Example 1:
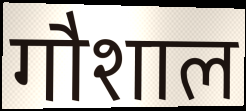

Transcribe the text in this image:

गौशाल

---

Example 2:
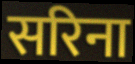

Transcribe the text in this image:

सरिना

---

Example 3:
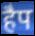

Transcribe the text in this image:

हैप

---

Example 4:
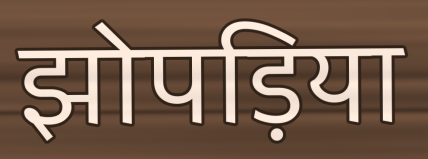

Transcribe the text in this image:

झोपड़िया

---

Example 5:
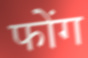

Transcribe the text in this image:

फोंग